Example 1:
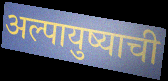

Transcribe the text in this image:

अल्पायुष्याची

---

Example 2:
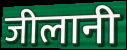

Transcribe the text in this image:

जीलानी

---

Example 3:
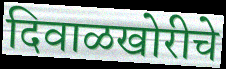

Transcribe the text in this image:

दिवाळखोरीचे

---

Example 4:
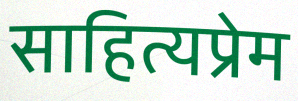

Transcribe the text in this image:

साहित्यप्रेम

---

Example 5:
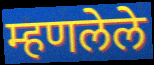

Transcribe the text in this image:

म्हणलेले